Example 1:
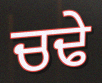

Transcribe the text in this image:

ਚਢੇ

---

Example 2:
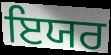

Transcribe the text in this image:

ਇਯਰ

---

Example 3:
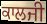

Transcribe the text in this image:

ਕਾਲਜੀ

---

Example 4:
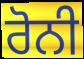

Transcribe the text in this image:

ਰੋਨੀ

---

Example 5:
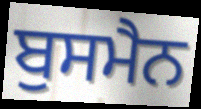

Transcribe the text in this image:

ਬੁਸਮੈਨ